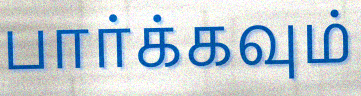
பார்க்கவும்